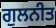
ਗੁਲਨੀਤ